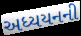
અધ્યયનની